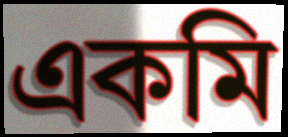
একমি